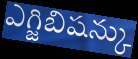
ఎగ్జిబిషన్కు